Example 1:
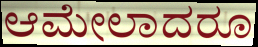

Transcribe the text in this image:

ಆಮೇಲಾದರೂ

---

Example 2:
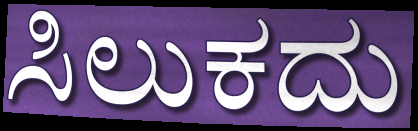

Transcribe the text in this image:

ಸಿಲುಕದು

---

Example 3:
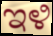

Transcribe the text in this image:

ಇಳಿ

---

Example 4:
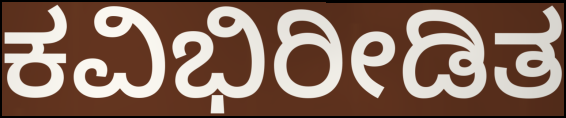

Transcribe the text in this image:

ಕವಿಭಿರೀಡಿತ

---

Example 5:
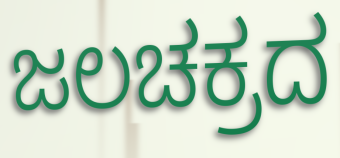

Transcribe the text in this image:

ಜಲಚಕ್ರದ